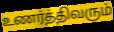
உணர்த்திவரும்